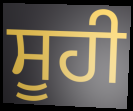
ਸੂਹੀ